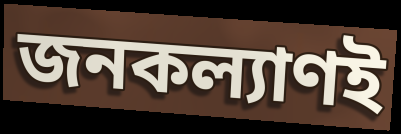
জনকল্যাণই